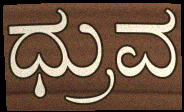
ಧ್ರುವ